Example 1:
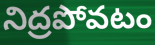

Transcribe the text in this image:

నిద్రపోవటం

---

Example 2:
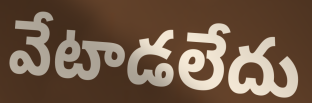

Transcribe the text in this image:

వేటాడలేదు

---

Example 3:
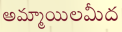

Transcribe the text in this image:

అమ్మాయిలమీద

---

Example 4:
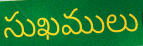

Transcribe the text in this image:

సుఖములు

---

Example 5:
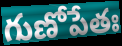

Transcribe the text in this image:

గుణోపేతః